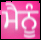
ਮੈਨੂੰ